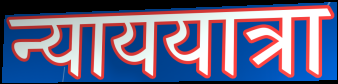
न्याययात्रा